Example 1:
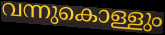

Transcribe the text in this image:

വന്നുകൊള്ളും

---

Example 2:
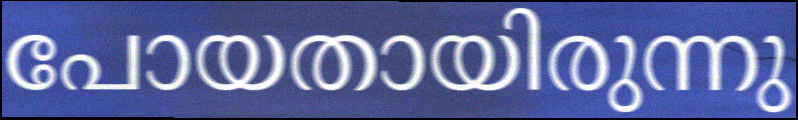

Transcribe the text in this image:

പോയതായിരുന്നു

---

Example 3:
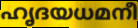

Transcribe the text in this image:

ഹൃദയധമനീ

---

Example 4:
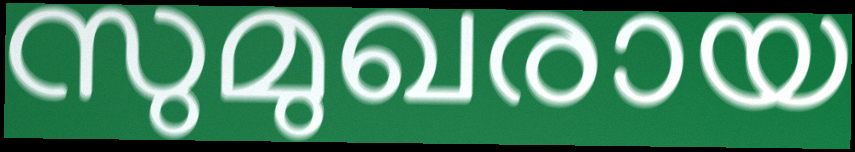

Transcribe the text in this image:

സുമുഖരായ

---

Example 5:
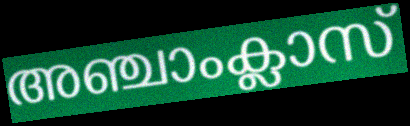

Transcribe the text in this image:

അഞ്ചാംക്ലാസ്